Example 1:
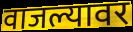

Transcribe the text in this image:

वाजल्यावर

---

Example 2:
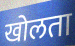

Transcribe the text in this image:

खोलता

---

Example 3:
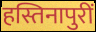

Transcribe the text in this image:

हस्तिनापुरीं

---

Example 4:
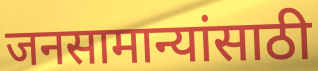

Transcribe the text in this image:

जनसामान्यांसाठी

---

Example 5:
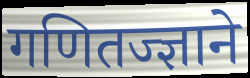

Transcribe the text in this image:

गणितज्ज्ञाने